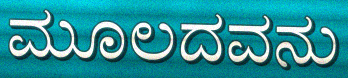
ಮೂಲದವನು